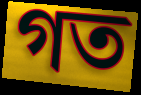
গত